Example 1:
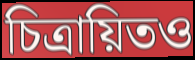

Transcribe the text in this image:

চিত্রায়িতও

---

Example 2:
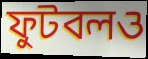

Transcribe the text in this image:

ফুটবলও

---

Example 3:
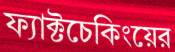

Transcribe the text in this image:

ফ্যাক্টচেকিংয়ের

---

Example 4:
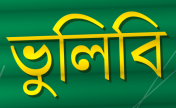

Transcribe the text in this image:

ভুলিবি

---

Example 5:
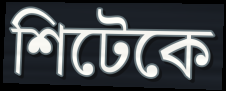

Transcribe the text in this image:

শিটেকে